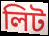
লিট